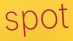
spot